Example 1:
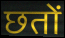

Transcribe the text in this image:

छतों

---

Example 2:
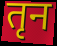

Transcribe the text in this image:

तृन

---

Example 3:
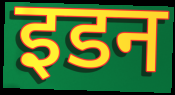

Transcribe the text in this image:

इडन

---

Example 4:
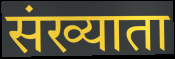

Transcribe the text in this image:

संख्याता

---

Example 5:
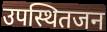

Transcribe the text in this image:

उपस्थितजन